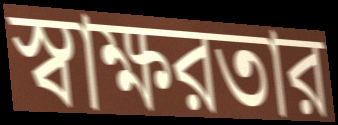
স্বাক্ষরতার